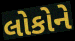
લોકોને